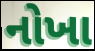
નોખા